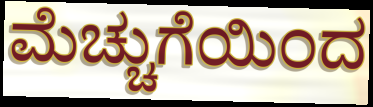
ಮೆಚ್ಚುಗೆಯಿಂದ